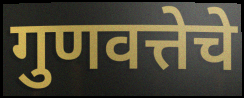
गुणवत्तेचे